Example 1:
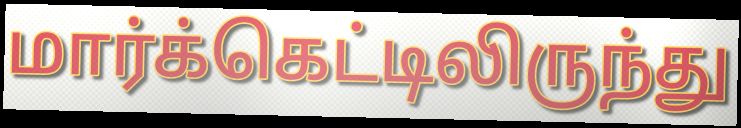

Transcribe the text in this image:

மார்க்கெட்டிலிருந்து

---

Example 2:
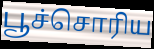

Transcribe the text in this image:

பூச்சொரிய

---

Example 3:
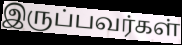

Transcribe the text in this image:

இருப்பவர்கள்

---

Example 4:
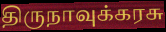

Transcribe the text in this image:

திருநாவுக்கரசு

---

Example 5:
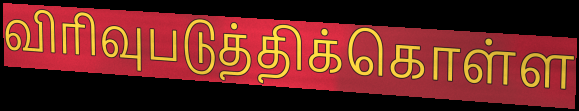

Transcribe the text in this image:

விரிவுபடுத்திக்கொள்ள